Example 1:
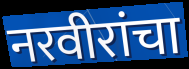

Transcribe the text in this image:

नरवीरांचा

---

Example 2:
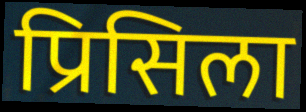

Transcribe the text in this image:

प्रिसिला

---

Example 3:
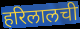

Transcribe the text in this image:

हरिलालची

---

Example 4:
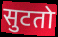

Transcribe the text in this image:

सुटतो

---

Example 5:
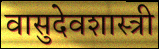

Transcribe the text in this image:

वासुदेवशास्त्री